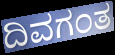
ದಿವಗಂತ